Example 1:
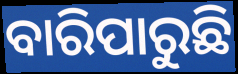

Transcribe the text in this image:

ବାରିପାରୁଛି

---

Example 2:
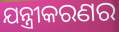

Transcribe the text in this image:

ଯନ୍ତ୍ରୀକରଣର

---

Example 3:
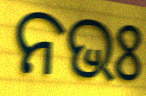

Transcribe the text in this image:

ନଭଃ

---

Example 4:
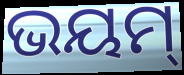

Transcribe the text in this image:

ଭୟମ୍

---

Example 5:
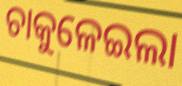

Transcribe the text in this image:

ଚାକୁଳେଇଲା